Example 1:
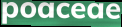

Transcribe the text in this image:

poaceae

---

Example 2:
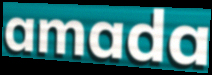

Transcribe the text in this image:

amada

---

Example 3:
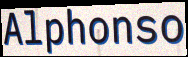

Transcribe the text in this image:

Alphonso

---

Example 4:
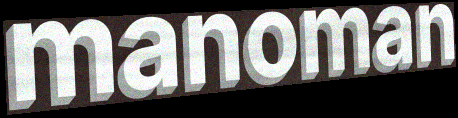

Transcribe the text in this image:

manoman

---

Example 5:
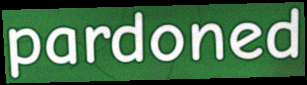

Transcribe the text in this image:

pardoned